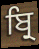
ਬ੍ਰਿ